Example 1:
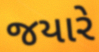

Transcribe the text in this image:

જયારે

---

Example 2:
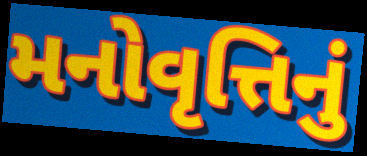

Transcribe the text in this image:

મનોવૃત્તિનું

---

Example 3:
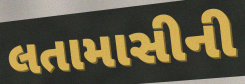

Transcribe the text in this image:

લતામાસીની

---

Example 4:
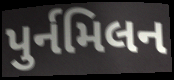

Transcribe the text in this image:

પુર્નમિલન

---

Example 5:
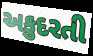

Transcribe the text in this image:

અકુદરતી